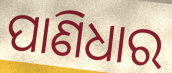
ପାଣିଧାର